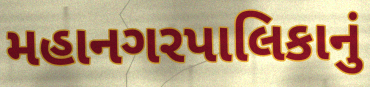
મહાનગરપાલિકાનું